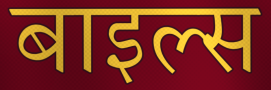
बाइल्स